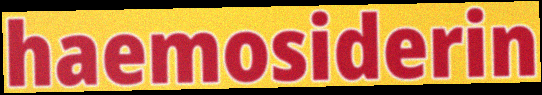
haemosiderin